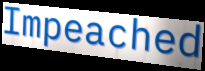
Impeached